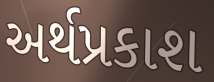
અર્થપ્રકાશ